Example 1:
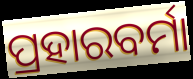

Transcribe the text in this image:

ପ୍ରହାରବର୍ମା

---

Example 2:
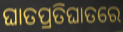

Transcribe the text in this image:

ଘାତପ୍ରତିଘାତରେ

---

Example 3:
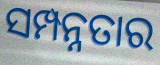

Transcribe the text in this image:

ସମ୍ପନ୍ନତାର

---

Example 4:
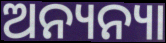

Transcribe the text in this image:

ଅନ୍ୟନ୍ୟା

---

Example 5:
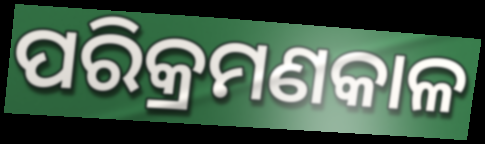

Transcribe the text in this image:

ପରିକ୍ରମଣକାଳ